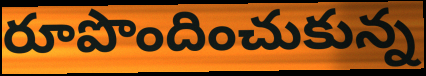
రూపొందించుకున్న